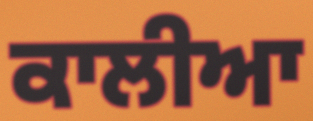
ਕਾਲੀਆ